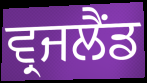
ਵ੍ਰਜਲੈਂਡ